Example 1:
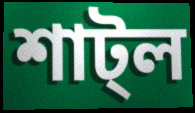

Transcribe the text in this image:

শাট্ল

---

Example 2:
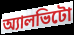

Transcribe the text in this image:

অ্যালভিটো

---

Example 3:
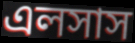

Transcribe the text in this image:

এলসাস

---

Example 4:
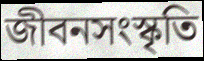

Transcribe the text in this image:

জীবনসংস্কৃতি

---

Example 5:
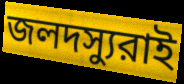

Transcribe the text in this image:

জলদস্যুরাই